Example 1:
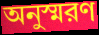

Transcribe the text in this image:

অনুস্মরণ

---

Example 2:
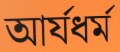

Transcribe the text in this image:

আর্যধর্ম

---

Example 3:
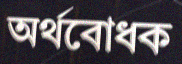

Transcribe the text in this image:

অর্থবোধক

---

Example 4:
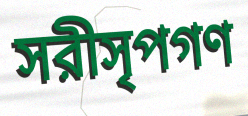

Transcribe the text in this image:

সরীসৃপগণ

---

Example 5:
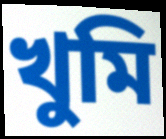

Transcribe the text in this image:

খুমি